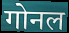
गोनल